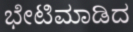
ಭೇಟಿಮಾಡಿದ